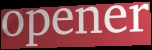
opener